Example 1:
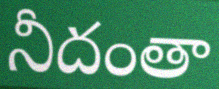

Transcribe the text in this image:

నీదంతా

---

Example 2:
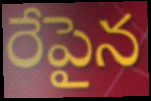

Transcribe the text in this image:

రేపైన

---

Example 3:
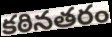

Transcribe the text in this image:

కఠినతరం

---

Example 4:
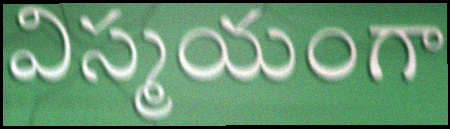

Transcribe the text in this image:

విస్మయంగా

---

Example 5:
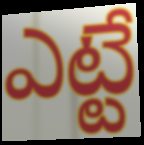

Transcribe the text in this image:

ఎట్టే